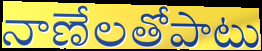
నాణేలతోపాటు